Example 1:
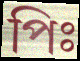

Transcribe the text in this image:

পিঃ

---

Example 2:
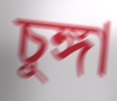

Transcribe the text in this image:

চুঙ্গা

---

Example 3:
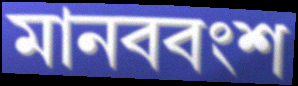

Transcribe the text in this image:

মানববংশ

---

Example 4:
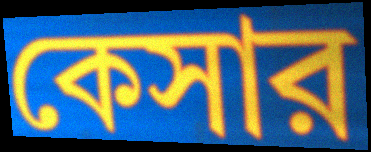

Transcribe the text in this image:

কেসার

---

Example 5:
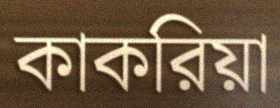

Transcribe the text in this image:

কাকরিয়া